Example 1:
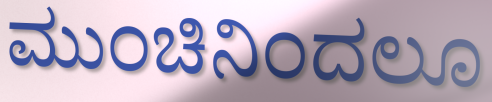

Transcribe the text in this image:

ಮುಂಚಿನಿಂದಲೂ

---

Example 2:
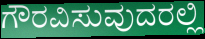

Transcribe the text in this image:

ಗೌರವಿಸುವುದರಲ್ಲಿ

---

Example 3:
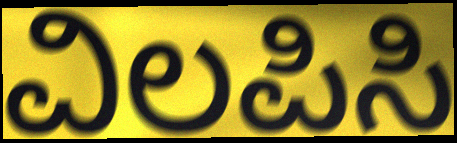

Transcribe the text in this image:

ವಿಲಪಿಸಿ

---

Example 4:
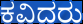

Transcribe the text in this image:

ಕವಿದರು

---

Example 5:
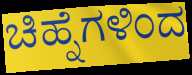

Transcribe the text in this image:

ಚಿಹ್ನೆಗಳಿಂದ